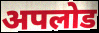
अपलोड